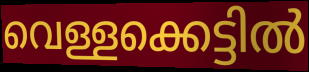
വെള്ളക്കെട്ടിൽ